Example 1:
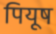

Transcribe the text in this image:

पियूष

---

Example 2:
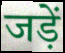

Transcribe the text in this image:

जड़ें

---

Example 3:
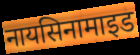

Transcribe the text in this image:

नायसिनामाइड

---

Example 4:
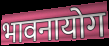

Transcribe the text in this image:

भावनायोग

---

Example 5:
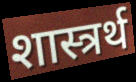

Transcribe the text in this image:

शास्त्रर्थ